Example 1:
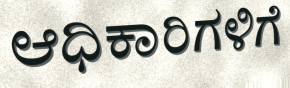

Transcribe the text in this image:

ಆಧಿಕಾರಿಗಳಿಗೆ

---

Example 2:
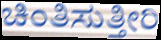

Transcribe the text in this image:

ಚಿಂತಿಸುತ್ತೀರಿ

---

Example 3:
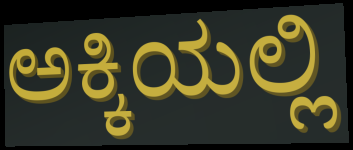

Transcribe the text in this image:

ಅಕ್ಕಿಯಲ್ಲಿ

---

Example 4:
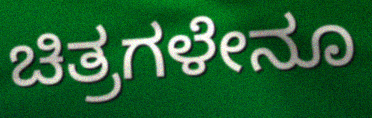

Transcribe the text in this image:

ಚಿತ್ರಗಳೇನೂ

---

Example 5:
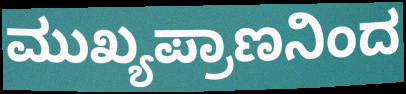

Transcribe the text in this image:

ಮುಖ್ಯಪ್ರಾಣನಿಂದ